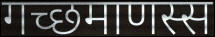
गच्छमाणस्स